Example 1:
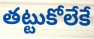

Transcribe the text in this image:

తట్టుకోలేకే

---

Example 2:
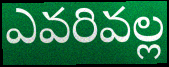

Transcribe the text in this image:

ఎవరివల్ల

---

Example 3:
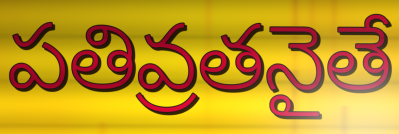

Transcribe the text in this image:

పతివ్రతనైతే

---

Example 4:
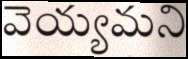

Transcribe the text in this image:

వెయ్యమని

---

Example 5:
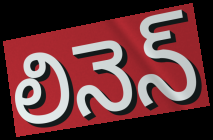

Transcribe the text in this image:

లినెన్